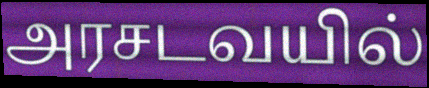
அரசடவயில்